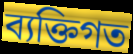
ব্যক্তিগত